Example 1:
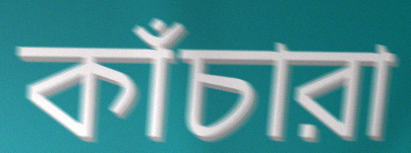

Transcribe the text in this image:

কাঁচারা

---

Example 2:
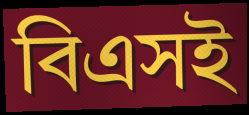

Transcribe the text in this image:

বিএসই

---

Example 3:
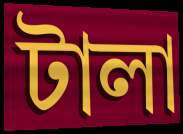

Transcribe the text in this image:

টালা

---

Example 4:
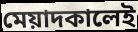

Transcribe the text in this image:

মেয়াদকালেই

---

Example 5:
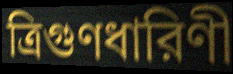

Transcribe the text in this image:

ত্রিগুণধারিণী